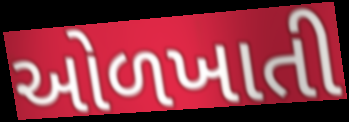
ઓળખાતી